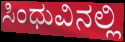
ಸಿಂಧುವಿನಲ್ಲಿ